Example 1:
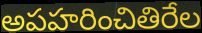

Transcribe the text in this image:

అపహరించితిరేల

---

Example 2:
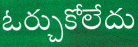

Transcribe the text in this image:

ఓర్చుకోలేదు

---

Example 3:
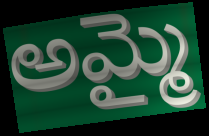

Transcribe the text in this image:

అమ్మై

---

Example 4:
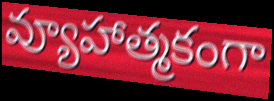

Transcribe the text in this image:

వ్యూహాత్మకంగా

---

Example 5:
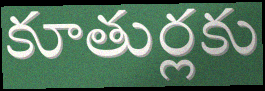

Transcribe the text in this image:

కూతుర్లకు